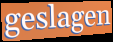
geslagen